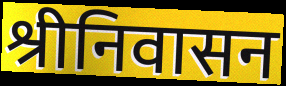
श्रीनिवासन